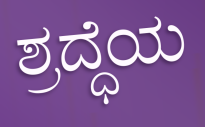
ಶ್ರದ್ಧೆಯ